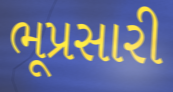
ભૂપ્રસારી